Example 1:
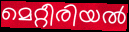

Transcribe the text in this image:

മെറ്റീരിയൽ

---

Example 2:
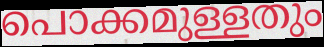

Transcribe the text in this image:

പൊക്കമുള്ളതും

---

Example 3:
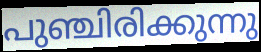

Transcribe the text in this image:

പുഞ്ചിരിക്കുന്നു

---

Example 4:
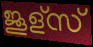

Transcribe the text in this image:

ജൂള്സ്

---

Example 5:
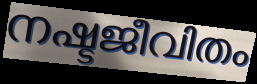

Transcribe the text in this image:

നഷ്ടജീവിതം